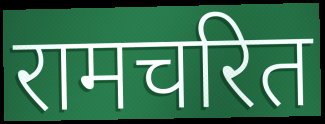
रामचरित